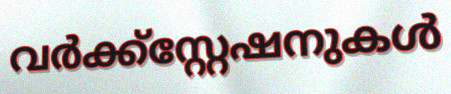
വർക്ക്സ്റ്റേഷനുകൾ